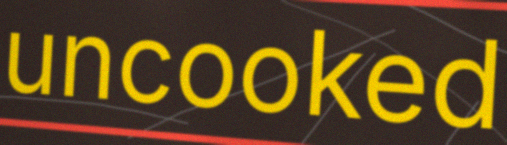
uncooked